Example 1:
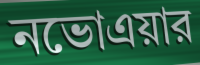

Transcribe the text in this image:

নভোএয়ার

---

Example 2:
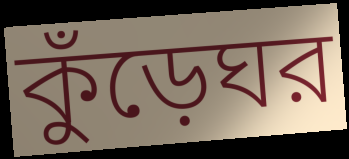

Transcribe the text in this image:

কুঁড়েঘর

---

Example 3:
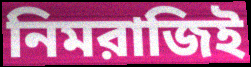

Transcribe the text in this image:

নিমরাজিই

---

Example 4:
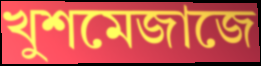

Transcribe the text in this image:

খুশমেজাজে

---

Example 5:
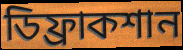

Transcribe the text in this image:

ডিফ্রাকশান